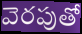
వెరపుతో